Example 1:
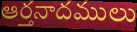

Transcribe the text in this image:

ఆర్తనాదములు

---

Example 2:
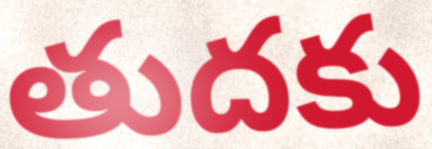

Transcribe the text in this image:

తుదకు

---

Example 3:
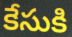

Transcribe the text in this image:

కేసుకి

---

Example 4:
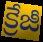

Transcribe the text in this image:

క్రేజీ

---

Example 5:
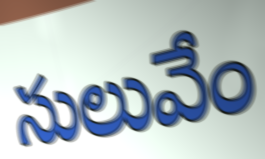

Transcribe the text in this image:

సులువేం